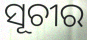
ସୂଚୀର